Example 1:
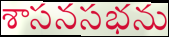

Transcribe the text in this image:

శాసనసభను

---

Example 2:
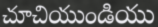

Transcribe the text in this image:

చూచియుండియు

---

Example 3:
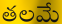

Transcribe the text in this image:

తలమే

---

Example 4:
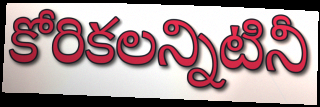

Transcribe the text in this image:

కోరికలన్నిటినీ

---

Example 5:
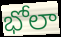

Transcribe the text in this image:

భోలా